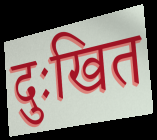
दुःखित